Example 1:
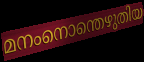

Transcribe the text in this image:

മനംനൊന്തെഴുതിയ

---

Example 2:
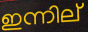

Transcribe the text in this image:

ഇന്നില്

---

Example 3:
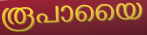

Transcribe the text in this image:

രൂപായൈ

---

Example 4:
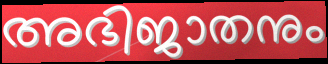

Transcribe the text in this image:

അഭിജാതനും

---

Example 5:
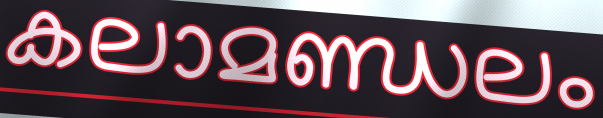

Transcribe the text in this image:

കലാമണ്ഡലം